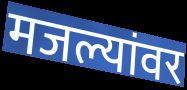
मजल्यांवर